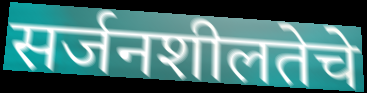
सर्जनशीलतेचे